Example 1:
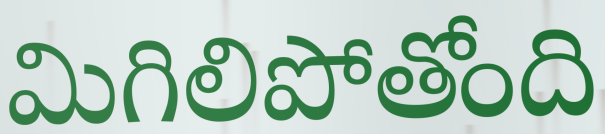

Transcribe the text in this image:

మిగిలిపోతోంది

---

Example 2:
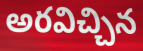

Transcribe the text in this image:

అరవిచ్చిన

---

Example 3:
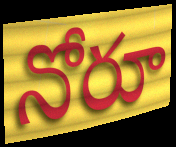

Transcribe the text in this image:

నోరూ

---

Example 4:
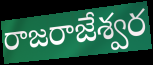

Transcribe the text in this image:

రాజరాజేశ్వర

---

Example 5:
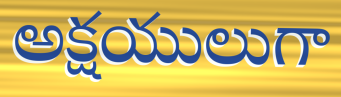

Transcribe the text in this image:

అక్షయులుగా